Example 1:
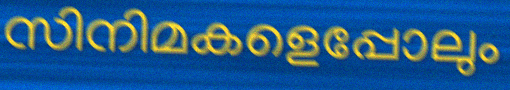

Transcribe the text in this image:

സിനിമകളെപ്പോലും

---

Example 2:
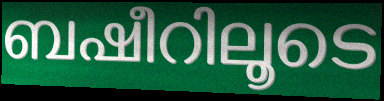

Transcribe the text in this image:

ബഷീറിലൂടെ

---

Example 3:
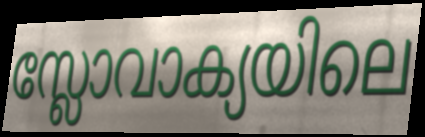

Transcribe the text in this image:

സ്ലോവാക്യയിലെ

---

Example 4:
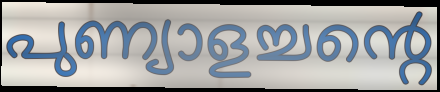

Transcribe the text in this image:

പുണ്യാളച്ചന്റെ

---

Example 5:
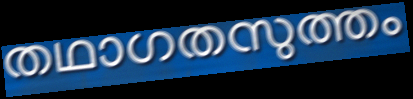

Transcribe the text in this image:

തഥാഗതസുത്തം